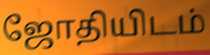
ஜோதியிடம்